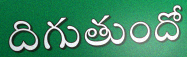
దిగుతుందో